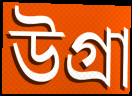
উগ্রা